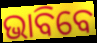
ଭାବିବେ